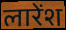
लारेंश